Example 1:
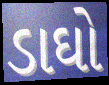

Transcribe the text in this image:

ડાઘો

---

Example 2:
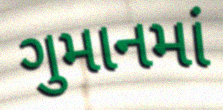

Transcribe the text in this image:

ગુમાનમાં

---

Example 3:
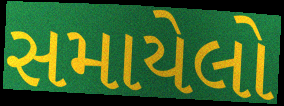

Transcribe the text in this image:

સમાયેલો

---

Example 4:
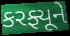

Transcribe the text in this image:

કરફ્યૂને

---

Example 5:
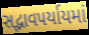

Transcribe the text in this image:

સદ્ભાવપર્યાયમાં